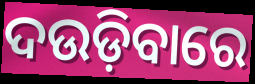
ଦଉଡ଼ିବାରେ